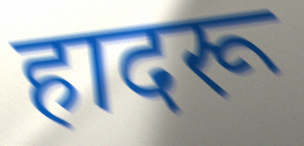
हादरू